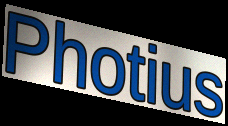
Photius